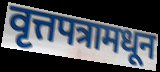
वृत्तपत्रामधून